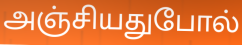
அஞ்சியதுபோல்